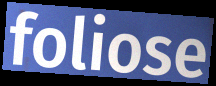
foliose